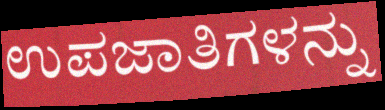
ಉಪಜಾತಿಗಳನ್ನು